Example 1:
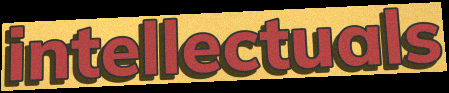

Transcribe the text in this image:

intellectuals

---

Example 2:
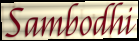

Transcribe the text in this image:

Sambodhi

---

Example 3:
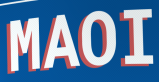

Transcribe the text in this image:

MAOI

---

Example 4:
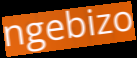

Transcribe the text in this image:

ngebizo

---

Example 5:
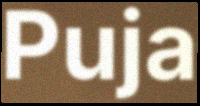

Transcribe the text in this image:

Puja